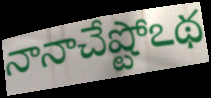
నానాచేష్టోఽథ